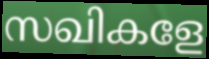
സഖികളേ